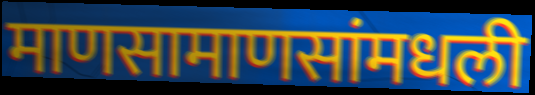
माणसामाणसांमधली